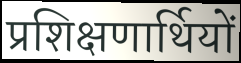
प्रशिक्षणार्थियों